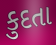
કુદતા